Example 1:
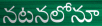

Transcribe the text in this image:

నటనలోనూ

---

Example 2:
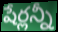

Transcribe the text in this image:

షేర్లన్నీ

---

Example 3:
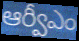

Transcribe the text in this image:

ఆర్వీఎం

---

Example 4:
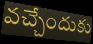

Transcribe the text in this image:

వచ్చేందుకు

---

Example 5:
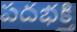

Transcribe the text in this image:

పదభక్తి